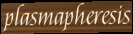
plasmapheresis